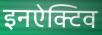
इनऐक्टिव